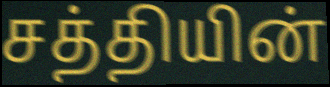
சத்தியின்